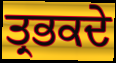
ਤ੍ਰਭਕਦੇ